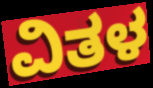
ವಿತಳ